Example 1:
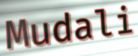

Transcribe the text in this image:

Mudali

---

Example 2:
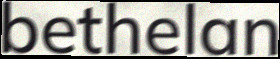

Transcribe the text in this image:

bethelan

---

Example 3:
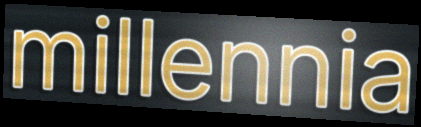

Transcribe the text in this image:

millennia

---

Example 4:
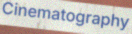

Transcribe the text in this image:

Cinematography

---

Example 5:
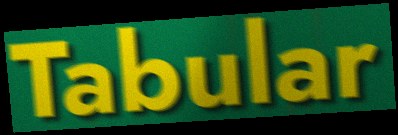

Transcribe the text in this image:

Tabular